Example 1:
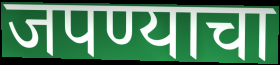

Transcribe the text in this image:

जपण्याचा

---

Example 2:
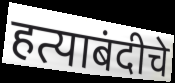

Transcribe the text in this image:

हत्याबंदीचे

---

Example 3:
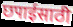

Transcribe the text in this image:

छपाईसाठी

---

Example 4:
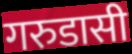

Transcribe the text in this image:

गरुडासी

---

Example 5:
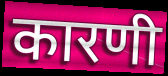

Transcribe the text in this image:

कारणी